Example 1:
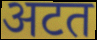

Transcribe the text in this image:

अटत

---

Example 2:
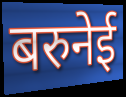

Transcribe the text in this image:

बरुनेई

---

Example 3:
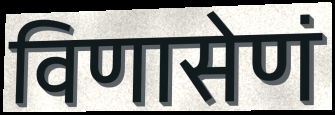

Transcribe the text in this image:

विणासेणं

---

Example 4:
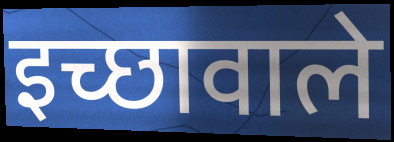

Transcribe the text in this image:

इच्छावाले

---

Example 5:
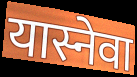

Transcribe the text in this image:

यास्नेवा